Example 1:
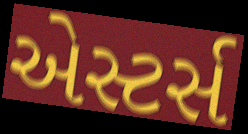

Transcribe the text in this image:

એસ્ટર્સ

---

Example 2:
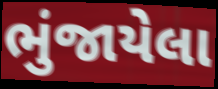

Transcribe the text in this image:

ભુંજાયેલા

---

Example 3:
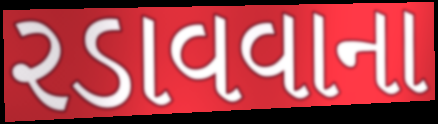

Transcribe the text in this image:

રડાવવાના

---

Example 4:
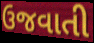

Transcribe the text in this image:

ઉજવાતી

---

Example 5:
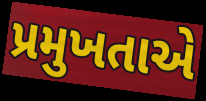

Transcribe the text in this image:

પ્રમુખતાએ